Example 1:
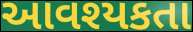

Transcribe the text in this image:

આવશ્યકતા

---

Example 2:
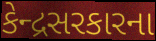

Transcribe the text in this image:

કેન્દ્રસરકારના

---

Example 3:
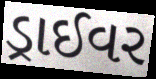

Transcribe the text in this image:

ડ્રાઈવર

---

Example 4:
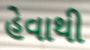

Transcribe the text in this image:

હેવાથી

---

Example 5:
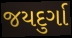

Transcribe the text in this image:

જયદુર્ગા